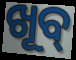
ଖୂବ୍